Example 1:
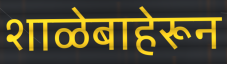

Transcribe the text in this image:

शाळेबाहेरून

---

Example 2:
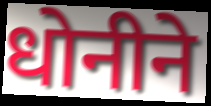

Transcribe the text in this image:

धोनीने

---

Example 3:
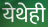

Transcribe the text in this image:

येथेही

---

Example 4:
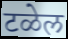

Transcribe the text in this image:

टळेल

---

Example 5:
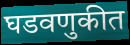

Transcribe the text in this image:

घडवणुकीत